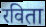
रविता